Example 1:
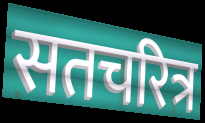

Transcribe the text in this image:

सतचरित्र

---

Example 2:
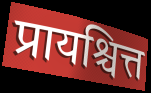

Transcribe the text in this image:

प्रायश्चित्त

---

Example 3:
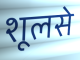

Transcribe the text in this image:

शूलसे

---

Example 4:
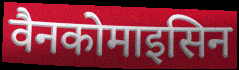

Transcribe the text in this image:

वैनकोमाइसिन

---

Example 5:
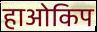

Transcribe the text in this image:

हाओकिप